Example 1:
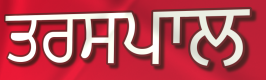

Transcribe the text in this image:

ਤਰਸਪਾਲ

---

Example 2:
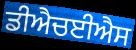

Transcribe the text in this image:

ਡੀਐਚਈਐਸ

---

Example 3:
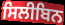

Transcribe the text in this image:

ਸਿਲੀਬਿਨ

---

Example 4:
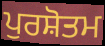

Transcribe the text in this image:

ਪੁਰਸ਼ੋਤਮ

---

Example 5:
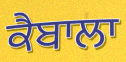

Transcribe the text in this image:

ਕੈਬਾਲਾ